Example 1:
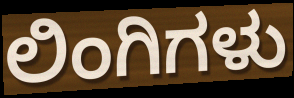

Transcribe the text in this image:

ಲಿಂಗಿಗಳು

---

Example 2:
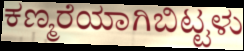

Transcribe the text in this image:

ಕಣ್ಮರೆಯಾಗಿಬಿಟ್ಟಳು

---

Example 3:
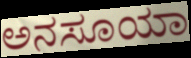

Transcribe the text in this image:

ಅನಸೂಯಾ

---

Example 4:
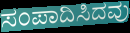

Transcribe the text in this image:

ಸಂಪಾದಿಸಿದವು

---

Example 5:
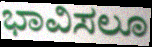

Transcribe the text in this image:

ಭಾವಿಸಲೂ